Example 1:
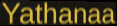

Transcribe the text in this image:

Yathanaa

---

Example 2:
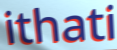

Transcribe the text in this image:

ithati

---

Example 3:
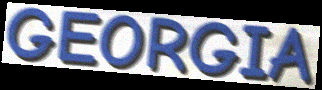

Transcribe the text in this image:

GEORGIA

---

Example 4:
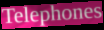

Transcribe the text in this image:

Telephones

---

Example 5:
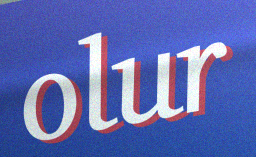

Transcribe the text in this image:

olur